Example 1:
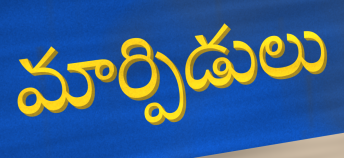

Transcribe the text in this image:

మార్పిడులు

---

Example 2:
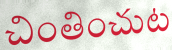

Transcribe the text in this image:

చింతించుట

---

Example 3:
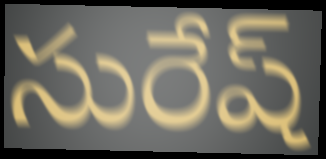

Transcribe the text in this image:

సురేష్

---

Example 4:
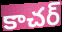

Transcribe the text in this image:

కాచర్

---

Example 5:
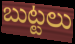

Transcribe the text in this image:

బుట్టలు